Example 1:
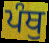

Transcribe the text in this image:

ਪੰਥੁ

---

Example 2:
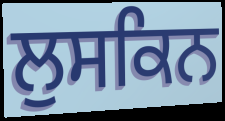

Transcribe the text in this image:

ਲੁਸਕਿਨ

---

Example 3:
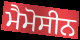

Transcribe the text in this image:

ਮੈਮੋਸੀਨ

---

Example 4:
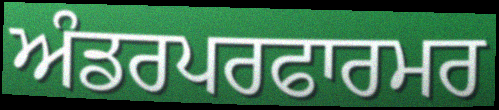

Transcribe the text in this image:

ਅੰਡਰਪਰਫਾਰਮਰ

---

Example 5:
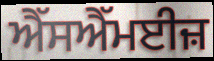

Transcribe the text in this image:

ਐੱਸਐੱਮਈਜ਼